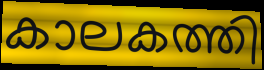
കാലകത്തി